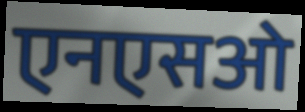
एनएसओ